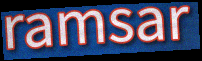
ramsar